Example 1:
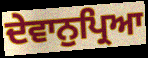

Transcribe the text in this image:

ਦੇਵਾਨੁਪ੍ਰਿਆ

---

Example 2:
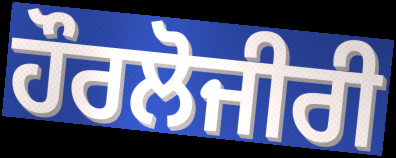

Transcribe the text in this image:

ਹੌਰਲੋਜੀਰੀ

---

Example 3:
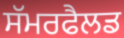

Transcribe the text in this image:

ਸੱਮਰਫੈਲਡ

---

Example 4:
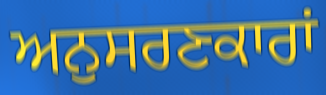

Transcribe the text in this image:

ਅਨੁਸਰਣਕਾਰਾਂ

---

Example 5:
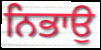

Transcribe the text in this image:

ਨਿਭਾਉ